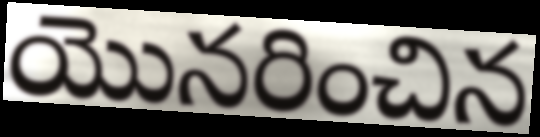
యొనరించిన